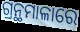
ଗ୍ରନ୍ଥମାଳାରେ